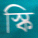
স্কি